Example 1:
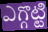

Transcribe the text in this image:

ఎగ్గొట్టి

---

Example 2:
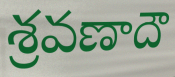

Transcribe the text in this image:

శ్రవణాదౌ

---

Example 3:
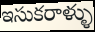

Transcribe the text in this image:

ఇసుకరాళ్ళు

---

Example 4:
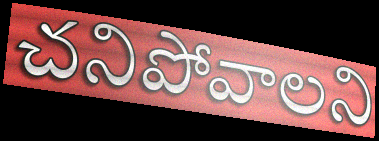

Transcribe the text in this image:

చనిపోవాలని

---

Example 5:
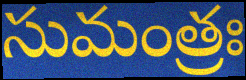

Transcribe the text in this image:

సుమంత్రః